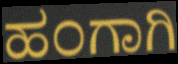
ಹಂಗಾಗಿ